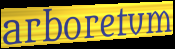
arboretum